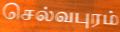
செல்வபுரம்